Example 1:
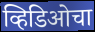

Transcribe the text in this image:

व्हिडिओचा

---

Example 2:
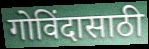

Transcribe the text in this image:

गोविंदासाठी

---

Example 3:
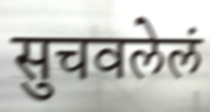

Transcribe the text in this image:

सुचवलेलं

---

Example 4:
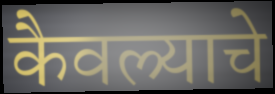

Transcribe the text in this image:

कैवल्याचे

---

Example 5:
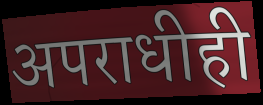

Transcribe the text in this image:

अपराधीही